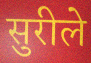
सुरीले